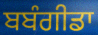
ਬਬੰਗੀਡਾ